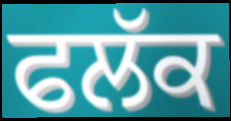
ਫਲੱਕ